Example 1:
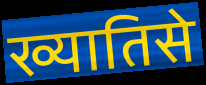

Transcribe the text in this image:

ख्यातिसे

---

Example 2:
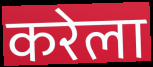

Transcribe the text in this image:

करेला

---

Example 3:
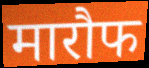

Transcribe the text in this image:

मारौफ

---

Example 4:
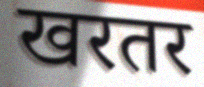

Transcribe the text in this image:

खरतर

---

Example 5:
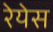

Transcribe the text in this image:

रेयेस